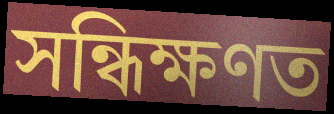
সন্ধিক্ষণত